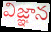
విజ్ఞాన